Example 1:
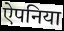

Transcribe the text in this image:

ऐपनिया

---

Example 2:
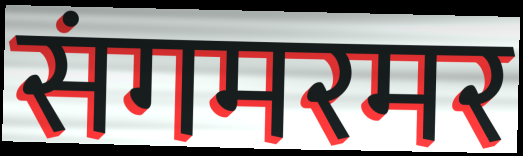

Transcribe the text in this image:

संगमरमर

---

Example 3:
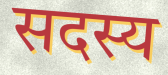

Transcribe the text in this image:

सदस्‍य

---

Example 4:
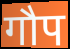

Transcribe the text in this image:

गौप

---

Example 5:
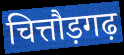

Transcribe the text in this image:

चित्तौड़गढ़